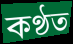
কণ্ঠত